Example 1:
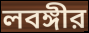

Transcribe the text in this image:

লবঙ্গীর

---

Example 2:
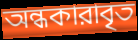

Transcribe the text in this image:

অন্ধকারাবৃত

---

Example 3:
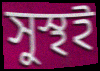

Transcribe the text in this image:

সুস্থই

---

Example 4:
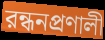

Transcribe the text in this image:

রন্ধনপ্রণালী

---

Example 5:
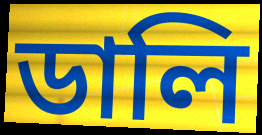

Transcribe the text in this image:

ডালি